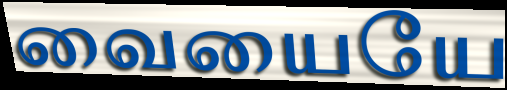
வையையே